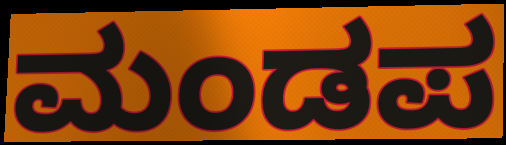
ಮಂಡಪ